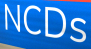
NCDs